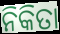
ନିକିତା